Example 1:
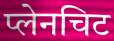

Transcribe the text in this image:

प्लेनचिट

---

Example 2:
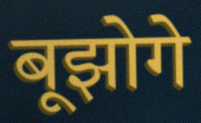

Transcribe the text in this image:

बूझोगे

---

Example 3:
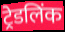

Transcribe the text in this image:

ट्रेडलिंक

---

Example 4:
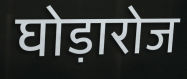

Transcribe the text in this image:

घोड़ारोज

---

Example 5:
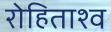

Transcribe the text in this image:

रोहिताश्व